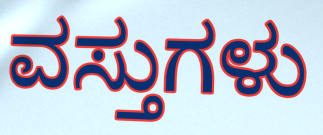
ವಸ್ತುಗಳು